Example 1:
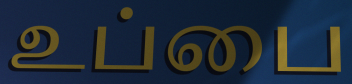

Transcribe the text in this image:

உப்பை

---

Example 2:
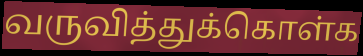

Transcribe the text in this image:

வருவித்துக்கொள்க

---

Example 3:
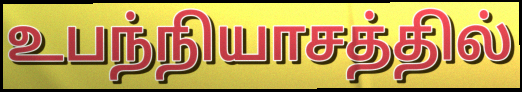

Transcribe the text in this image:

உபந்நியாசத்தில்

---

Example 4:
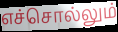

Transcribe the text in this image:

எச்சொல்லும்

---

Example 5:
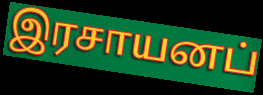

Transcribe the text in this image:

இரசாயனப்